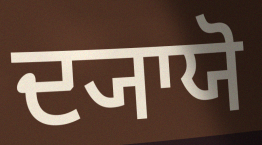
ਦ੍ਯਾਯੋ